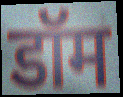
डॉम